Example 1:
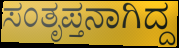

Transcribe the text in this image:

ಸಂತೃಪ್ತನಾಗಿದ್ದ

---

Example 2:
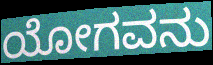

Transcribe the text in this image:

ಯೋಗವನು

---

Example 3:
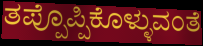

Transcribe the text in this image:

ತಪ್ಪೊಪ್ಪಿಕೊಳ್ಳುವಂತೆ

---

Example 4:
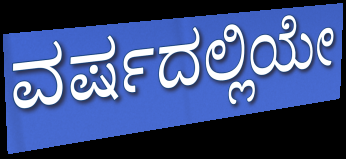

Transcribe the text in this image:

ವರ್ಷದಲ್ಲಿಯೇ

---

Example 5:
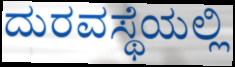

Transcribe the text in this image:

ದುರವಸ್ಥೆಯಲ್ಲಿ